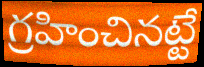
గ్రహించినట్టే